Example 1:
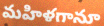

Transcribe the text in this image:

మహిళగానూ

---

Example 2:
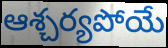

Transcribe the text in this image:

ఆశ్చర్యపోయే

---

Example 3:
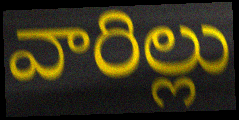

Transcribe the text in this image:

వారిల్లు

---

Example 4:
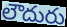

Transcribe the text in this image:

లౌదురు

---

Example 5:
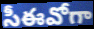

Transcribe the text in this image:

సీఈవోగా